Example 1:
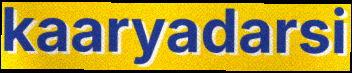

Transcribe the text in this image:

kaaryadarsi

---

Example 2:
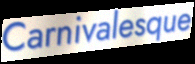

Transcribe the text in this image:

Carnivalesque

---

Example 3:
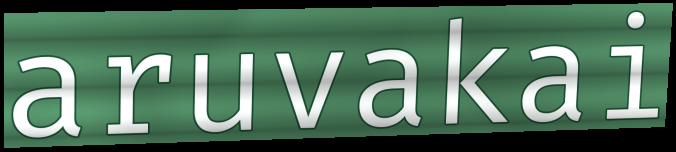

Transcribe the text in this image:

aruvakai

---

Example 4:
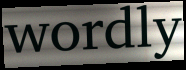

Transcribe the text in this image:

wordly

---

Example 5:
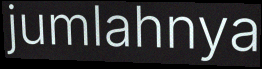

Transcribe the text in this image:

jumlahnya